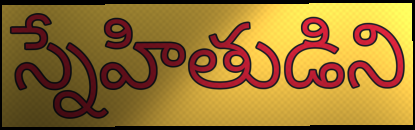
స్నేహితుడిని